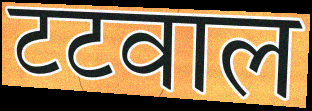
टटवाल